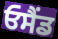
ਓਸੈਂਡ